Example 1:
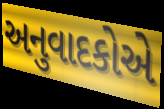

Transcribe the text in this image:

અનુવાદકોએ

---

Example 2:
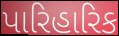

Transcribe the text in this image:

પારિહારિક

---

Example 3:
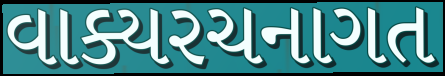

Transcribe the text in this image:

વાક્યરચનાગત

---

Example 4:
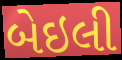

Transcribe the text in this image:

બેઇલી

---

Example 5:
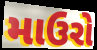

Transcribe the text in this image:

માઉરો